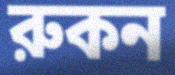
রুকন